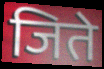
जिते